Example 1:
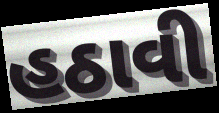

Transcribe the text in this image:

હઠાવી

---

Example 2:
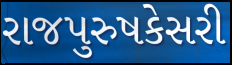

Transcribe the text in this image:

રાજપુરુષકેસરી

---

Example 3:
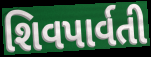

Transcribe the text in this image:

શિવપાર્વતી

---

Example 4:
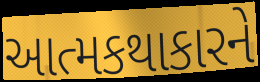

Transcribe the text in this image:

આત્મકથાકારને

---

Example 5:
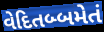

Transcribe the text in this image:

વેદિતબ્બમેતં